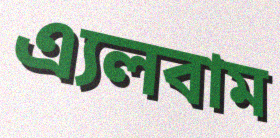
এ্যলবাম